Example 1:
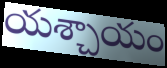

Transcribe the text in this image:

యశ్చాయం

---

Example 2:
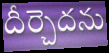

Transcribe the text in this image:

దీర్చెదను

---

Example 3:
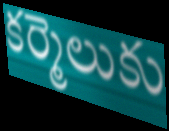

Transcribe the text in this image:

కర్మెలుకు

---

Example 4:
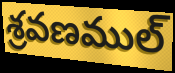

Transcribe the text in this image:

శ్రవణముల్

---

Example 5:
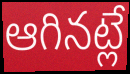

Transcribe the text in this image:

ఆగినట్లే